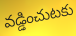
వడ్డించుటకు